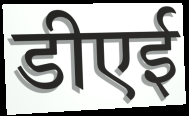
डीएई